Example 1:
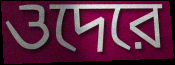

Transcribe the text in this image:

ওদেরে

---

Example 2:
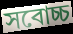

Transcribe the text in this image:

সবোচ্চ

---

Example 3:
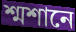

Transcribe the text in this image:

শ্মশানে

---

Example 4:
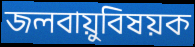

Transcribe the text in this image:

জলবায়ুবিষয়ক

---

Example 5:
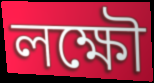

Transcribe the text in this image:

লক্ষৌ